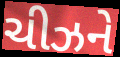
ચીઝને